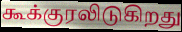
கூக்குரலிடுகிறது